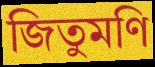
জিতুমণি